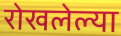
रोखलेल्या